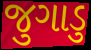
જુગાડુ